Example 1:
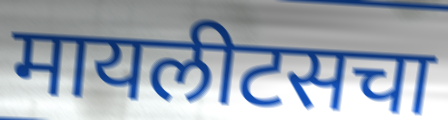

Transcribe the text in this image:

मायलीटसचा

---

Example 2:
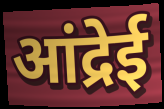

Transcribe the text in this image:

आंद्रेई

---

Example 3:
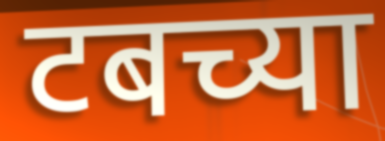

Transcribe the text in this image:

टबच्या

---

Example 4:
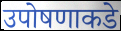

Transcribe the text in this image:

उपोषणाकडे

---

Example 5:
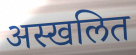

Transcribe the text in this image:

अस्खलित